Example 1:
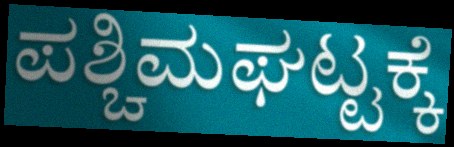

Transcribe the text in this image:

ಪಶ್ಚಿಮಘಟ್ಟಕ್ಕೆ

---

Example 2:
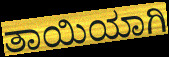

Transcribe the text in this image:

ತಾಯಿಯಾಗಿ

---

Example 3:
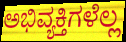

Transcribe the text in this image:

ಅಭಿವ್ಯಕ್ತಿಗಳೆಲ್ಲ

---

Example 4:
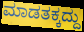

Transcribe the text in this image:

ಮಾಡತಕ್ಕದ್ದು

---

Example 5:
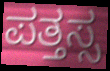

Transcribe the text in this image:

ಪತ್ತಸ್ಸ